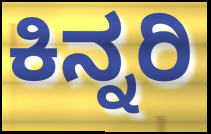
ಕಿನ್ನರಿ